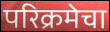
परिक्रमेचा